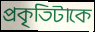
প্রকৃতিটাকে